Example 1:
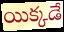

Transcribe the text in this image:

యిక్కడే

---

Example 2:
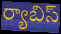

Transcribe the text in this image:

ర్యాబిస్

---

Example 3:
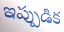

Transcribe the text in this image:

ఇప్పుడిక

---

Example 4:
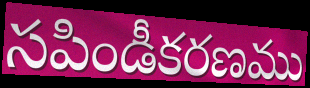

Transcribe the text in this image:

సపిండీకరణము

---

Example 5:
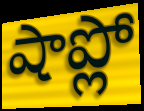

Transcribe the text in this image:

షాప్లో